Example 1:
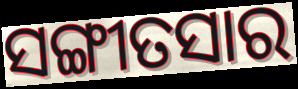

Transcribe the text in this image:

ସଙ୍ଗୀତସାର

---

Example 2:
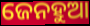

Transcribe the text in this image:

ଜେନହୁଆ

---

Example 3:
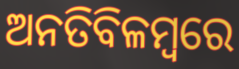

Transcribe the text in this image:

ଅନତିବିଳମ୍ବରେ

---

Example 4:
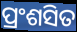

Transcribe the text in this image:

ପ୍ରଂଶସିତ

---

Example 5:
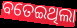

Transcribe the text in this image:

ବତେଇଥିଲା